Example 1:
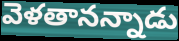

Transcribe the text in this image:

వెళతానన్నాడు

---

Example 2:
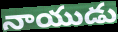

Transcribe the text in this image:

నాయుడు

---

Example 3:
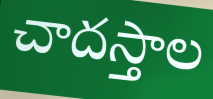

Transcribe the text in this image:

చాదస్తాల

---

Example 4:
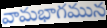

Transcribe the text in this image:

వామభాగమున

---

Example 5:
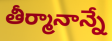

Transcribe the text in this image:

తీర్మానాన్నే